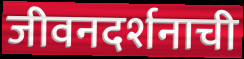
जीवनदर्शनाची